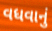
વધવાનું